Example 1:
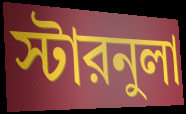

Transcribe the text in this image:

স্টারনুলা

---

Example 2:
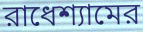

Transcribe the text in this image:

রাধেশ্যামের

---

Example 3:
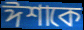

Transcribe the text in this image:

ঈশাকে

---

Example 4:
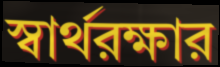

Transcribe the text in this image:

স্বার্থরক্ষার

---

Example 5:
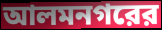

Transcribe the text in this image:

আলমনগরের